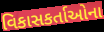
વિકાસકર્તાઓના